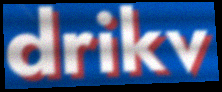
drikv